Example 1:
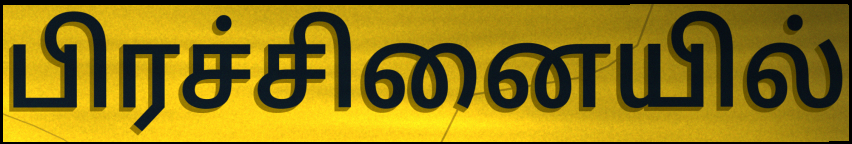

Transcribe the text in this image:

பிரச்சினையில்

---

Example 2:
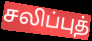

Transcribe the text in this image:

சலிப்புத்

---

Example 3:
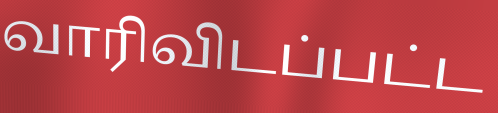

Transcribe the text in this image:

வாரிவிடப்பட்ட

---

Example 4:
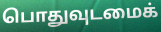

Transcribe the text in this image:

பொதுவுடமைக்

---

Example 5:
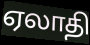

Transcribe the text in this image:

ஏலாதி